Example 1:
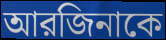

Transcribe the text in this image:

আরজিনাকে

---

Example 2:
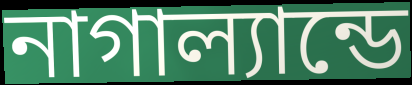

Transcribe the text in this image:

নাগাল্যান্ডে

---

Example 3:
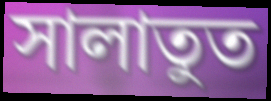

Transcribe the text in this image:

সালাতুত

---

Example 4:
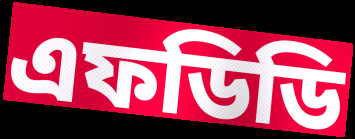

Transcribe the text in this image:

এফডিডি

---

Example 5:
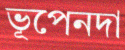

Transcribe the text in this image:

ভূপেনদা